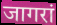
जागरां